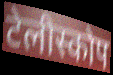
टेलीस्कोप